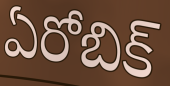
ఏరోబిక్